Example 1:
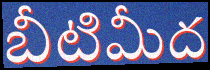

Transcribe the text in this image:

బీటిమీద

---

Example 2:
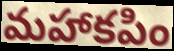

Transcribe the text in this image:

మహాకపిం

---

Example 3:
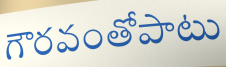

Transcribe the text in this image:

గౌరవంతోపాటు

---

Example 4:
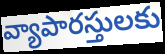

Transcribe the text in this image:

వ్యాపారస్తులకు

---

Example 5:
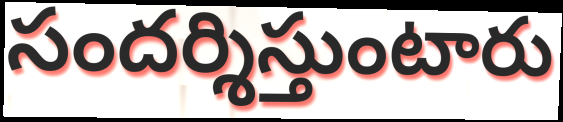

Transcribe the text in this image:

సందర్శిస్తుంటారు